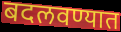
बदलवण्यात